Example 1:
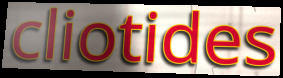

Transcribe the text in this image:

cliotides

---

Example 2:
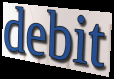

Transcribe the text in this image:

debit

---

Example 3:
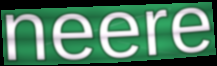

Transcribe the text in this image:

neere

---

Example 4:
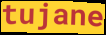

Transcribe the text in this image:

tujane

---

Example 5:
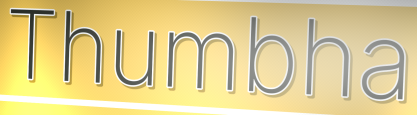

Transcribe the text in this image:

Thumbha